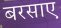
बरसाए